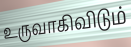
உருவாகிவிடும்